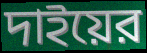
দাইয়ের